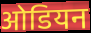
ओडियन